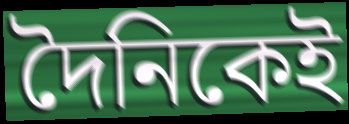
দৈনিকেই